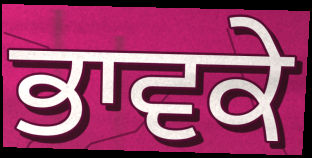
ਭਾਵਕੇ